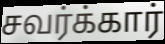
சவர்க்கார்